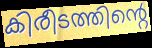
കിരീടത്തിന്റെ